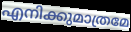
എനിക്കുമാത്രമേ